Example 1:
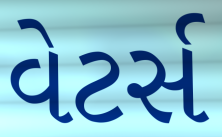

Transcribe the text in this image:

વેટર્સ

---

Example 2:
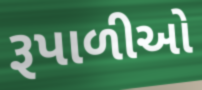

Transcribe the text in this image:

રૂપાળીઓ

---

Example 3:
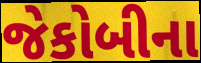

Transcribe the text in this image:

જેકોબીના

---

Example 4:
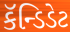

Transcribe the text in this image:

કૅન્ડિડેટ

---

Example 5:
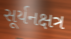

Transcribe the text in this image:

સૂર્યનક્ષત્ર